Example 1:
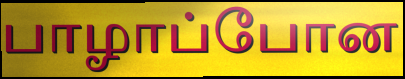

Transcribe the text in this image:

பாழாப்போன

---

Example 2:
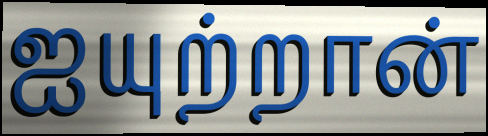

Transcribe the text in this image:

ஐயுற்றான்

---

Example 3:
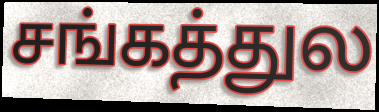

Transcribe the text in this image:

சங்கத்துல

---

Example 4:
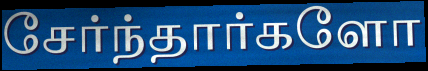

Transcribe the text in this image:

சேர்ந்தார்களோ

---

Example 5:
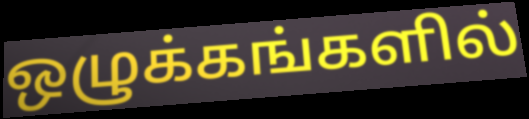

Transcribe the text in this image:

ஒழுக்கங்களில்